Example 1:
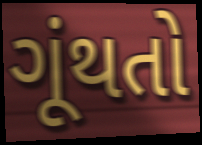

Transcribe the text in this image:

ગૂંથતો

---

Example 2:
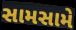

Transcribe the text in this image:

સામસામે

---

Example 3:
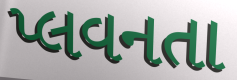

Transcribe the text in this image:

પ્લવનતા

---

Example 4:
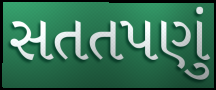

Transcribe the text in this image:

સતતપણું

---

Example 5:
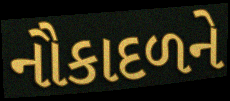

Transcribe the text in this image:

નૌકાદળને